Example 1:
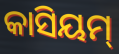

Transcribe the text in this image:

କାସିୟମ୍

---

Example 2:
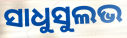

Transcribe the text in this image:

ସାଧୁସୁଲଭ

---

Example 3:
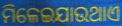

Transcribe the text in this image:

ମିଳେଇଯାଉଥାଏ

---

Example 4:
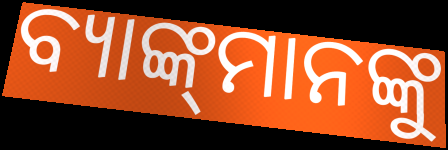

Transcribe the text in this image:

ବ୍ୟାଙ୍କ୍‌ମାନଙ୍କୁ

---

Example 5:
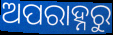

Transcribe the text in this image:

ଅପରାହ୍ନରୁ